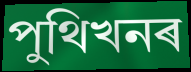
পুথিখনৰ